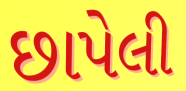
છાપેલી